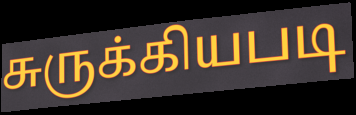
சுருக்கியபடி